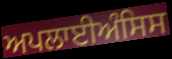
ਅਪਲਾਈਅੰਸਿਸ